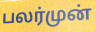
பலர்முன்